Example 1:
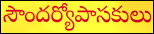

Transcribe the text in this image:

సౌందర్యోపాసకులు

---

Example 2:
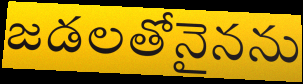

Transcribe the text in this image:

జడలతోనైనను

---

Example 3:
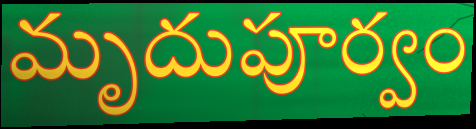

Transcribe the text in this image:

మృదుపూర్వం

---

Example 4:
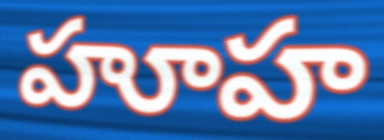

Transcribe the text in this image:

హూహ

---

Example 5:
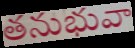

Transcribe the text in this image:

తనుభువా